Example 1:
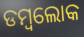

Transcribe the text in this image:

ଡମ୍ବଲୋକ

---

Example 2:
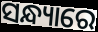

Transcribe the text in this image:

ସନ୍ଧ୍ୟାରେ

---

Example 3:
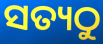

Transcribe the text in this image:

ସତ୍ୟଠୁ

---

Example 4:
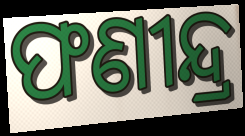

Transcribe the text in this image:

ଫଣୀନ୍ଦ୍ର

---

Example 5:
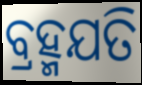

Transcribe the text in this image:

ବ୍ରହ୍ମଯତି